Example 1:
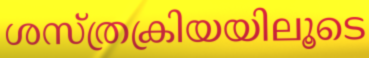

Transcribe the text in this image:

ശസ്ത്രക്രിയയിലൂടെ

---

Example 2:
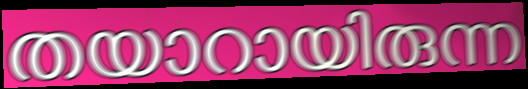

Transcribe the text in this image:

തയാറായിരുന്ന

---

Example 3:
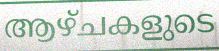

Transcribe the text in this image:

ആഴ്ചകളുടെ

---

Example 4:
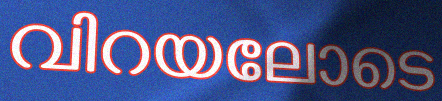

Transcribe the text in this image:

വിറയലോടെ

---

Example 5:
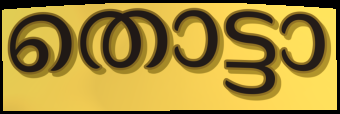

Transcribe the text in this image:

തൊട്ടാ